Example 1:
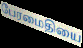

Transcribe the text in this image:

பேரமைதியை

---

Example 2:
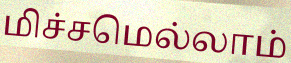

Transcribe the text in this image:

மிச்சமெல்லாம்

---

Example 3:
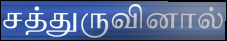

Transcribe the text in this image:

சத்துருவினால்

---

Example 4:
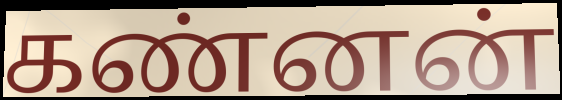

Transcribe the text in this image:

கண்னன்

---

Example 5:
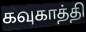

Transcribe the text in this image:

கவுகாத்தி